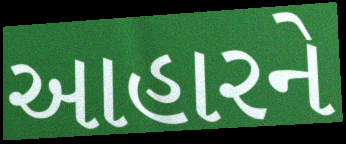
આહારને